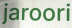
jaroori